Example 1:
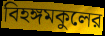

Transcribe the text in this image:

বিহঙ্গমকুলের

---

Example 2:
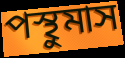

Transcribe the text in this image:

পস্থুমাস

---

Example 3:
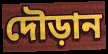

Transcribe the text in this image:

দৌড়ান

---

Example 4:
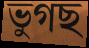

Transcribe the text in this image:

ভুগছ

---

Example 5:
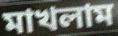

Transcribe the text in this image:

মাখলাম